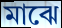
মাঝে